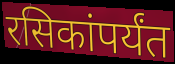
रसिकांपर्यंत